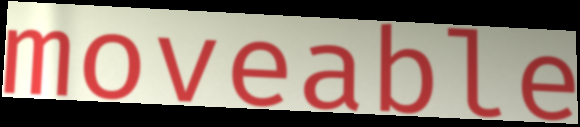
moveable